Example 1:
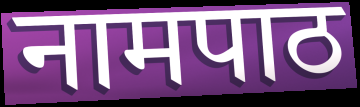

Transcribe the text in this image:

नामपाठ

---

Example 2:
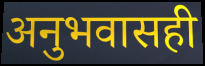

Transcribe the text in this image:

अनुभवासही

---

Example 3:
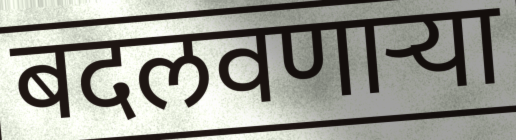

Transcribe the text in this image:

बदलवणार्‍या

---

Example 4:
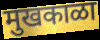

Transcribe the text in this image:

मुखकाळा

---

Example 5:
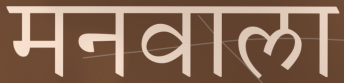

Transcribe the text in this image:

मनवाला